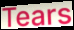
Tears